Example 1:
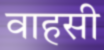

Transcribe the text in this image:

वाहसी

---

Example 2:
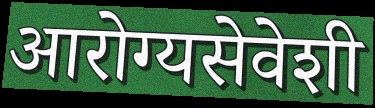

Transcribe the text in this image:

आरोग्यसेवेशी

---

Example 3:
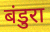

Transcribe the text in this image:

बंडुरा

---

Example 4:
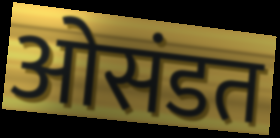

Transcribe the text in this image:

ओसंडत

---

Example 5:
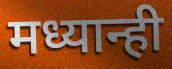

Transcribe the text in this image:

मध्यान्ही